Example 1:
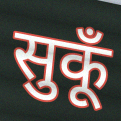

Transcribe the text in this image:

सुकूँ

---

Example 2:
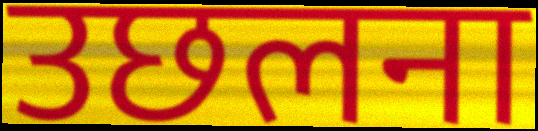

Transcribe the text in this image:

उछलना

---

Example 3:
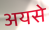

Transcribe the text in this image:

अयसे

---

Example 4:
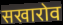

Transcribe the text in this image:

सखारोव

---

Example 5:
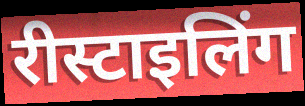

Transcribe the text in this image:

रीस्टाइलिंग